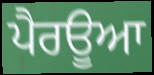
ਪੈਰਊਆ